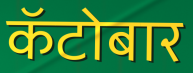
कॅटोबार